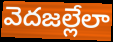
వెదజల్లేలా